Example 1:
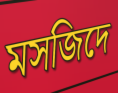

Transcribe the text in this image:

মসজিদে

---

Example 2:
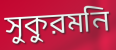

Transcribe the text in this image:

সুকুরমনি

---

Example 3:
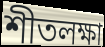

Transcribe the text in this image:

শীতলক্ষা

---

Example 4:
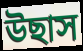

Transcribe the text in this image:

উছাস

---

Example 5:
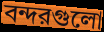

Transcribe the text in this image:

বন্দরগুলো